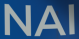
NAI